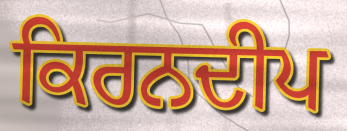
ਕਿਰਨਦੀਪ